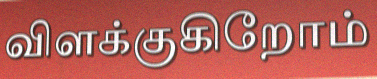
விளக்குகிறோம்